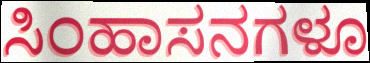
ಸಿಂಹಾಸನಗಳೂ